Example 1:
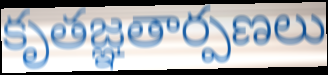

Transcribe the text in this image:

కృతజ్ఞతార్పణలు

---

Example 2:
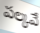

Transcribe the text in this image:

పల్కవే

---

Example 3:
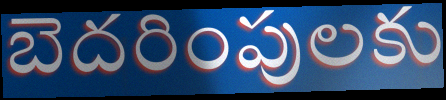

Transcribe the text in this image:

బెదరింపులకు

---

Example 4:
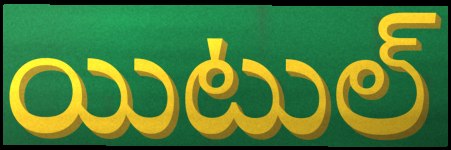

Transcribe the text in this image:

యిటుల్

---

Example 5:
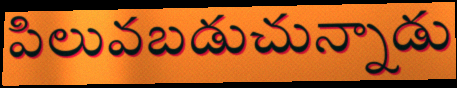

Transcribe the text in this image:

పిలువబడుచున్నాడు